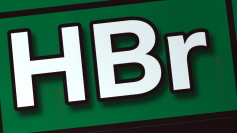
HBr